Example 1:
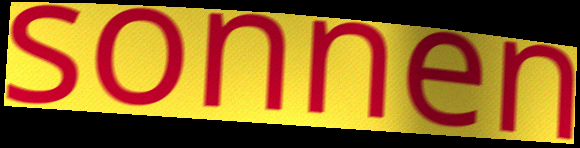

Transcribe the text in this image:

sonnen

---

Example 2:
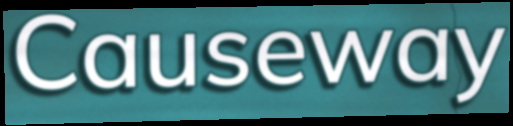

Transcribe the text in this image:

Causeway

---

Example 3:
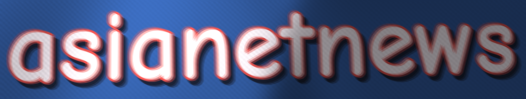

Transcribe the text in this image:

asianetnews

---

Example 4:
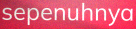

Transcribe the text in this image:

sepenuhnya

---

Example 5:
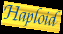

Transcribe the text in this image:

Haploid